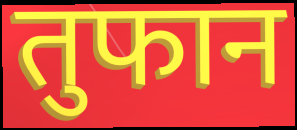
तुफान